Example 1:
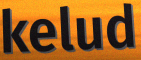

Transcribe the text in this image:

kelud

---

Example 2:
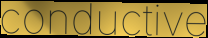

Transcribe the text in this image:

conductive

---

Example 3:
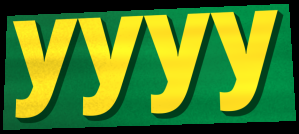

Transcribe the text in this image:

yyyy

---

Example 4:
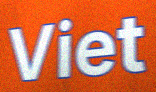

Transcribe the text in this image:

Viet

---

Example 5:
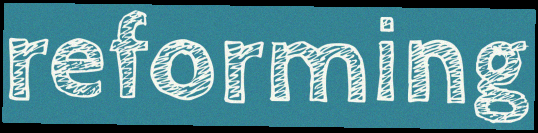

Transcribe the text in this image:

reforming